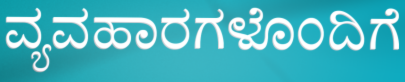
ವ್ಯವಹಾರಗಳೊಂದಿಗೆ